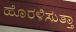
ಹೊರಳಿಸುತ್ತಾ